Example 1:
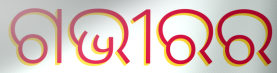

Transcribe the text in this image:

ଗଭୀରର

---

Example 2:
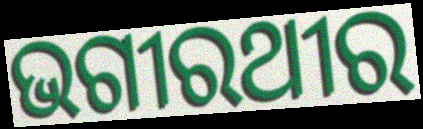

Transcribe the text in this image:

ଭଗୀରଥୀର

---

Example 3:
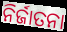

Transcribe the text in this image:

ନିର୍ଜାତନା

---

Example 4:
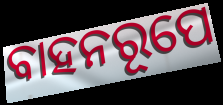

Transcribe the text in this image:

ବାହନରୂପେ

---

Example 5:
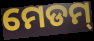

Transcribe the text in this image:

ମେଡମ୍